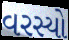
વરસ્યો